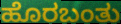
ಹೊರಬಂತು